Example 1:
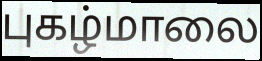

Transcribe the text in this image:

புகழ்மாலை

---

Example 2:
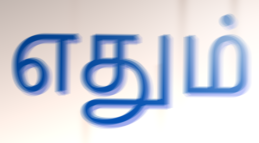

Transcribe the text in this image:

எதும்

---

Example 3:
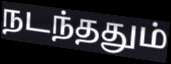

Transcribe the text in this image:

நடந்ததும்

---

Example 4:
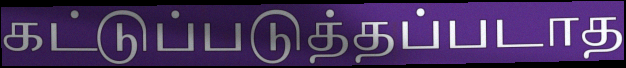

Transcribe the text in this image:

கட்டுப்படுத்தப்படாத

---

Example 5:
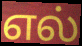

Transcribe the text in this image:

எல்